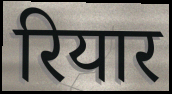
रियार